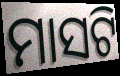
ମାସଟି